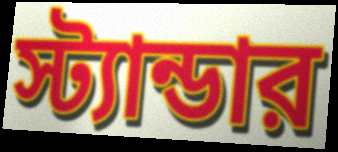
স্ট্যান্ডার